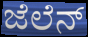
ಜೆಲೆನ್